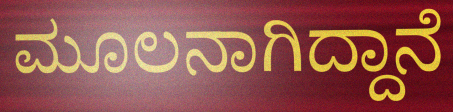
ಮೂಲನಾಗಿದ್ದಾನೆ